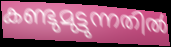
കണ്ടുമുട്ടുന്നതിൽ